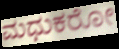
ಮಧುಕರೋ